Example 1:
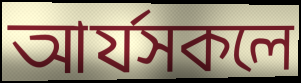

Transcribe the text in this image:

আৰ্যসকলে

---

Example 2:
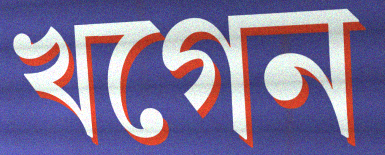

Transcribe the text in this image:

খগেন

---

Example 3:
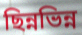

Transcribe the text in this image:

ছিন্নভিন্ন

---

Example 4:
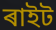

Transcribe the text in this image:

ৰাইট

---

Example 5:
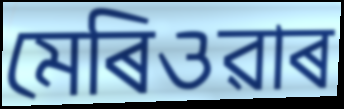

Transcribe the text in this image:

মেৰিওৱাৰ